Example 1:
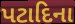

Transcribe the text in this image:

પટાદિના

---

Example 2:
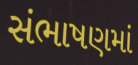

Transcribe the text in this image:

સંભાષણમાં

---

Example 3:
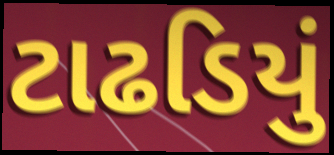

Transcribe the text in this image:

ટાઢડિયું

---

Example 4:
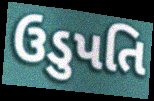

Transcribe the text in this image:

ઉડુપતિ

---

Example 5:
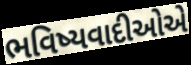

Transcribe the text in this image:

ભવિષ્યવાદીઓએ